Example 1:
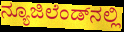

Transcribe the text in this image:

ನ್ಯೂಜಿಲೆಂಡ್‌ನಲ್ಲಿ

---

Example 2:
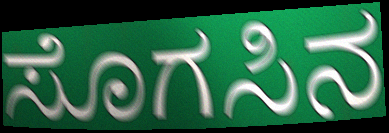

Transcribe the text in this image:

ಸೊಗಸಿನ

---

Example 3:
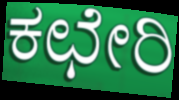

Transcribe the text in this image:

ಕಛೇರಿ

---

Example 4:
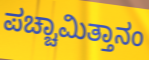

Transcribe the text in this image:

ಪಚ್ಚಾಮಿತ್ತಾನಂ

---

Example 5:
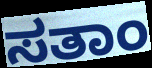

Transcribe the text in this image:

ಸತಾಂ